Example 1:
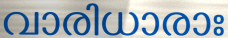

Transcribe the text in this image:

വാരിധാരാഃ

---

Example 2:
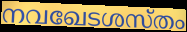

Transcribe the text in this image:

നവഖേടശസ്തം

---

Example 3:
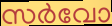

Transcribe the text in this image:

സർവോ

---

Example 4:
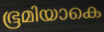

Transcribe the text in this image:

ഭൂമിയാകെ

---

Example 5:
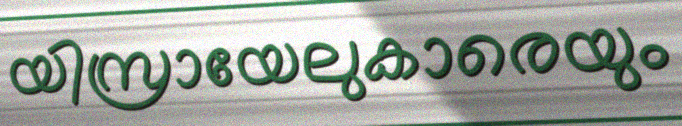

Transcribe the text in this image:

യിസ്രായേലുകാരെയും